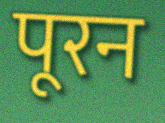
पूरन